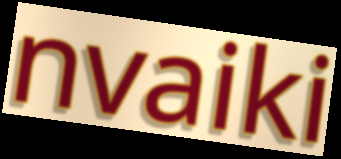
nvaiki